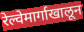
रेल्वेमार्गाखालून